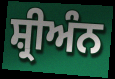
ਸ਼੍ਰੀਅੰਨ